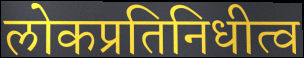
लोकप्रतिनिधीत्व